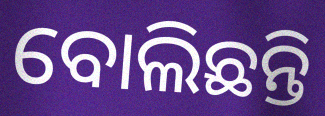
ବୋଲିଛନ୍ତି